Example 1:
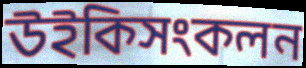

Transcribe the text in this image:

উইকিসংকলন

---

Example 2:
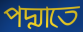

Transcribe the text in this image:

পদ্মাতে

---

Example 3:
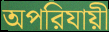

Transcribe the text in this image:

অপরিযায়ী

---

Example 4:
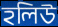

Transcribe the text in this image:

হলিউ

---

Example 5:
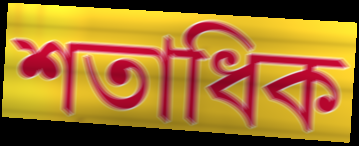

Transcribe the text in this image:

শতাধিক